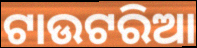
ଟାଉଟରିଆ